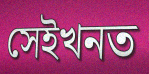
সেইখনত